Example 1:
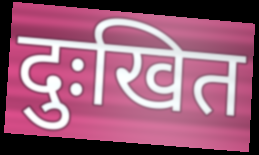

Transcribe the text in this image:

दुःखित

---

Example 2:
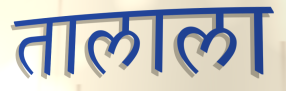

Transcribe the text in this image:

तालाला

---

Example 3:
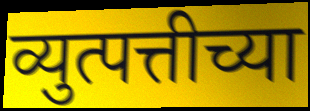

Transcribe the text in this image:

व्युत्पत्तीच्या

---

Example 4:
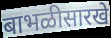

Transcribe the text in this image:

बाभळीसारखे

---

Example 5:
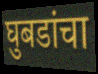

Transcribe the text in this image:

घुबडांचा